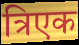
त्रिएक